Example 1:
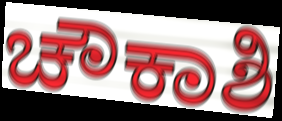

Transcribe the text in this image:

ಚೌಕಾಶಿ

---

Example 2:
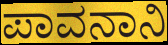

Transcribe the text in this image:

ಪಾವನಾನಿ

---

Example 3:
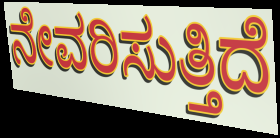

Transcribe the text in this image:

ನೇವರಿಸುತ್ತಿದೆ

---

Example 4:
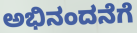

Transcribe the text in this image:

ಅಭಿನಂದನೆಗೆ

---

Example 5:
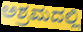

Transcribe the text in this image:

ಅಶ್ರಮದಲ್ಲಿ